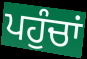
ਪਹੁੰਚਾਂ